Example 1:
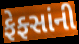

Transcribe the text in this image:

ફેફ્સાંની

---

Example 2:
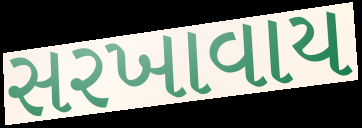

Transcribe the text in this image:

સરખાવાય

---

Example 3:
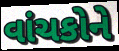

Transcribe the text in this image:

વાંચકોને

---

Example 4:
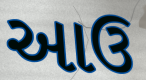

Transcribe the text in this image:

આઉ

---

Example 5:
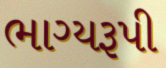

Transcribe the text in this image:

ભાગ્યરૂપી